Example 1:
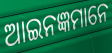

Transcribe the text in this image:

ଆଇନଜ୍ଞମାନେ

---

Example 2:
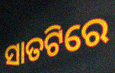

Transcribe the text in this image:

ସାତଟିରେ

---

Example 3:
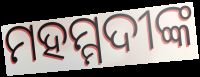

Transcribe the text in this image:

ମହମ୍ମଦୀଙ୍କ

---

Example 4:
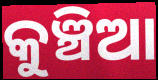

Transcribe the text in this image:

କୁଞ୍ଚିଆ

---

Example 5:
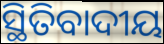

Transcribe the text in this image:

ସ୍ଥିତିବାଦୀୟ